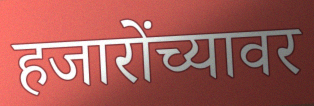
हजारोंच्यावर